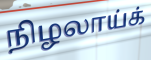
நிழலாய்க்